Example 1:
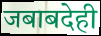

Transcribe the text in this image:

जबाबदेही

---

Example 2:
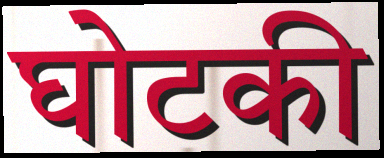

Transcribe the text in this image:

घोटकी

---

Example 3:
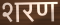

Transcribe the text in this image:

शरण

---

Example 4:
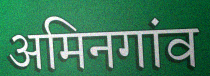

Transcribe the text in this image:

अमिनगांव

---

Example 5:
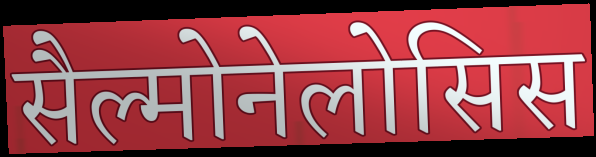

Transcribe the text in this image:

सैल्मोनेलोसिस